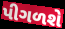
પીગળશે